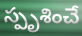
స్పృశించే